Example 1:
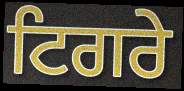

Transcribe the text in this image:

ਟਿਗਰੇ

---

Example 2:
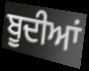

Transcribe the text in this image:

ਬੂਦੀਆਂ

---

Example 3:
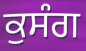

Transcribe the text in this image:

ਕੁਸੰਗ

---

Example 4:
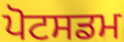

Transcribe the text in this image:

ਪੋਟਸਡਮ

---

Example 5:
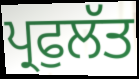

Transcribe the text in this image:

ਪ੍ਰਫੁਲੱਤ